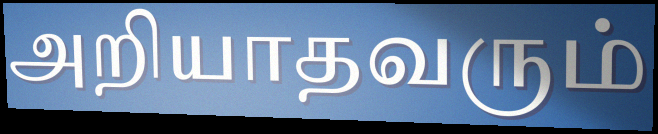
அறியாதவரும்